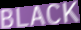
BLACK